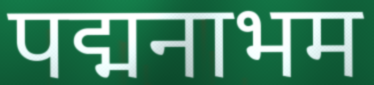
पद्मनाभम